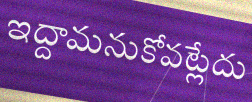
ఇద్దామనుకోవట్లేదు